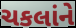
ચકલાંને